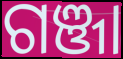
ଗଞ୍ଜା